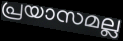
പ്രയാസമല്ല